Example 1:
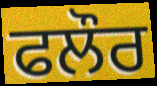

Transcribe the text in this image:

ਫਲੌਰ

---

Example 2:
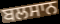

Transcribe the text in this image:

ਬਲਸਾਨ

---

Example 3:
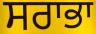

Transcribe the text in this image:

ਸਰਾਭਾ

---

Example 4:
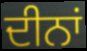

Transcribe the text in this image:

ਦੀਨਾਂ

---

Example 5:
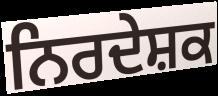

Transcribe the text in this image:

ਨਿਰਦੇਸ਼ਕ